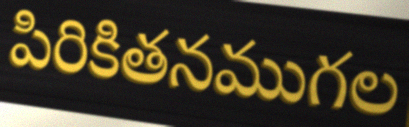
పిరికితనముగల